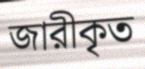
জারীকৃত